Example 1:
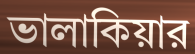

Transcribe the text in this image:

ভালাকিয়ার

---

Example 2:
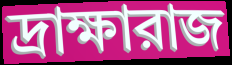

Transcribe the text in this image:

দ্রাক্ষারাজ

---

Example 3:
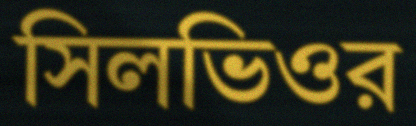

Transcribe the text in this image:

সিলভিওর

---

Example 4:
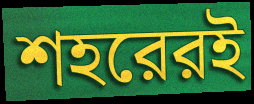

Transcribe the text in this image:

শহরেরই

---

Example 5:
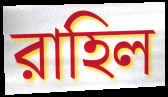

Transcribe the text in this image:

রাহিল